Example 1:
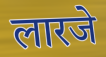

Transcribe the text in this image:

लारजे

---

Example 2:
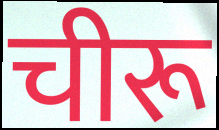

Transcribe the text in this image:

चीरू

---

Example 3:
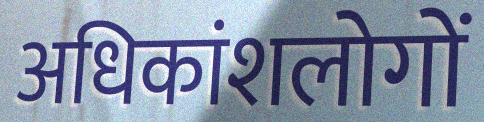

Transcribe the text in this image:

अधिकांशलोगों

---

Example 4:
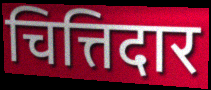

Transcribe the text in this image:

चित्तिदार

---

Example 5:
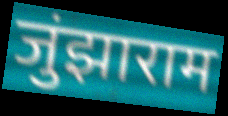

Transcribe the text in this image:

जुंझाराम